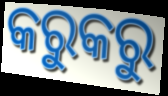
କରୁକରୁ